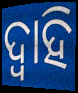
ଦ୍ୱାହି